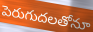
పెరుగుదలతోనూ